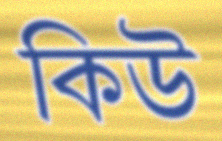
কিউ